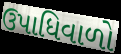
ઉપાધિવાળો